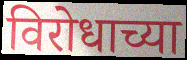
विरोधाच्या